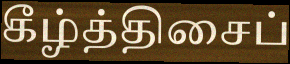
கீழ்த்திசைப்